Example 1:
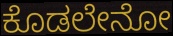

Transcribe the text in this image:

ಕೊಡಲೇನೋ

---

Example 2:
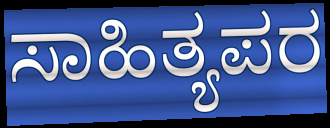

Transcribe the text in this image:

ಸಾಹಿತ್ಯಪರ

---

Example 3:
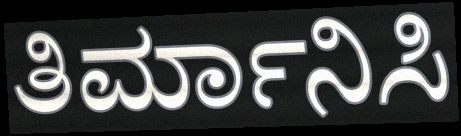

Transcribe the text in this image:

ತಿರ್ಮಾನಿಸಿ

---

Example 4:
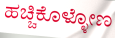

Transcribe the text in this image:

ಹಚ್ಚಿಕೊಳ್ಳೋಣ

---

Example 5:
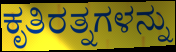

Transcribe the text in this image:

ಕೃತಿರತ್ನಗಳನ್ನು